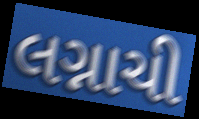
લગ્નાચી